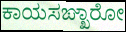
ಕಾಯಸಙ್ಖಾರೋ